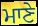
ਮਾਣੇ